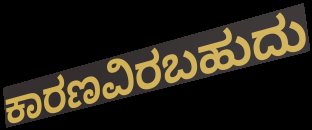
ಕಾರಣವಿರಬಹುದು